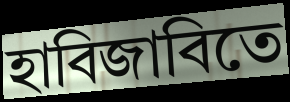
হাবিজাবিতে